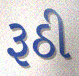
રૂઠી